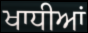
ਖਾਧੀਆਂ